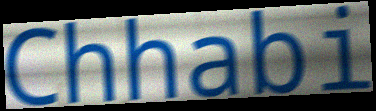
Chhabi